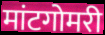
मांटगोमरी